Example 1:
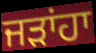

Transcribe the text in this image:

ਜੜਾਂਹਾ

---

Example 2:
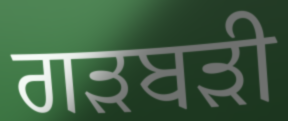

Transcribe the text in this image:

ਗੜਬੜੀ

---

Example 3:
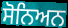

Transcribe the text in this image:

ਸੋਨਿਅਨ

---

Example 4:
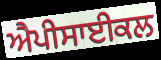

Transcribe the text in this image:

ਐਪੀਸਾਈਕਲ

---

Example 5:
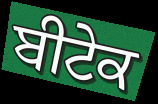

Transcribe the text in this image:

ਬੀਟੇਕ